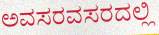
ಅವಸರವಸರದಲ್ಲಿ